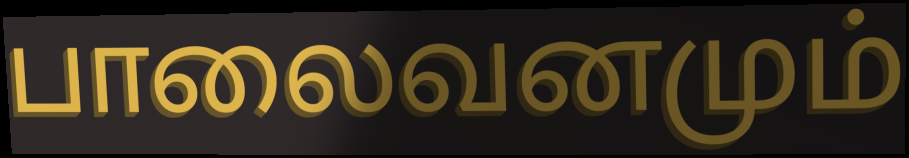
பாலைவனமும்